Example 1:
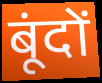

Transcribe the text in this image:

बूंदों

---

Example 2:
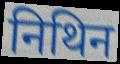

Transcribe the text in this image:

निथिन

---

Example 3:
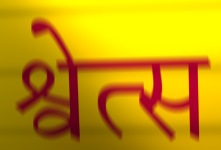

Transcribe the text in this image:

श्वेत्स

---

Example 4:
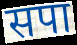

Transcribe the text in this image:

सपा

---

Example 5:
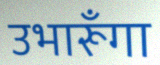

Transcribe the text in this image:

उभारूँगा